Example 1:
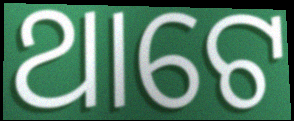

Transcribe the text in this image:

ଥାଟେ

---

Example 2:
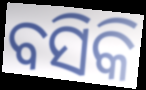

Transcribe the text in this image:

ବସିକି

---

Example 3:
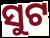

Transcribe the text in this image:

ସୁଟ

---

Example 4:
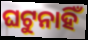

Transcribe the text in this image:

ଘଟୁନାହିଁ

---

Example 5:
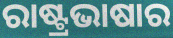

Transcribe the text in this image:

ରାଷ୍ଟ୍ରଭାଷାର